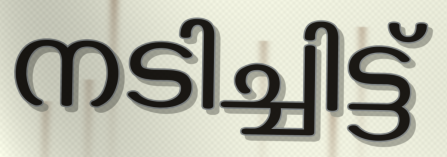
നടിച്ചിട്ട്